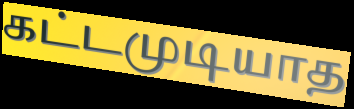
கட்டமுடியாத